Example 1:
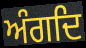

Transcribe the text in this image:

ਅੰਗਦਿ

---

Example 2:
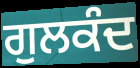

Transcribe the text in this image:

ਗੁਲਕੰਦ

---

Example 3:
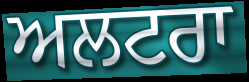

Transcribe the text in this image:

ਅਲਟਰਾ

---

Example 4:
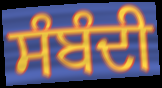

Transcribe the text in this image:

ਸੰਬੰਦੀ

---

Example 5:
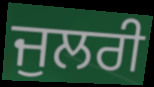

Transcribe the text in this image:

ਜੁਲਰੀ